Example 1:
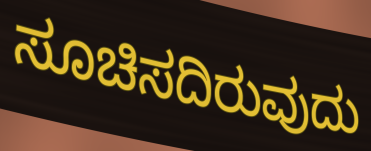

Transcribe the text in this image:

ಸೂಚಿಸದಿರುವುದು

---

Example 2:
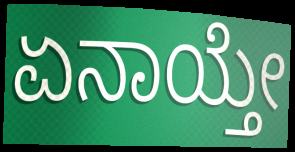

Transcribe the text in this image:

ಏನಾಯ್ತೇ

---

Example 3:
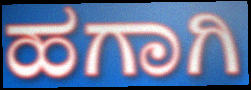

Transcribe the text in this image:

ಹಗಾಗಿ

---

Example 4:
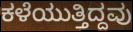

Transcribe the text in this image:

ಕಳೆಯುತ್ತಿದ್ದವು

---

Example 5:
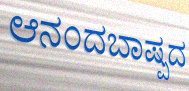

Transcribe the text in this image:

ಆನಂದಬಾಷ್ಪದ